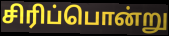
சிரிப்பொன்று